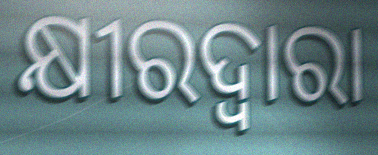
କ୍ଷୀରଦ୍ଵାରା